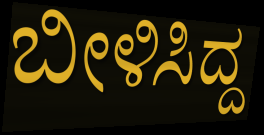
ಬೀಳಿಸಿದ್ದ